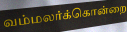
வம்மலர்க்கொன்றை